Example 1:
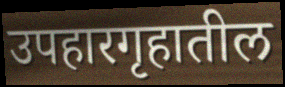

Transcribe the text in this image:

उपहारगृहातील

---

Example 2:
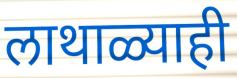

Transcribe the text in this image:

लाथाळ्याही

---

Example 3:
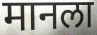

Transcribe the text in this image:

मानला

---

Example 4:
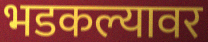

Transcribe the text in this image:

भडकल्यावर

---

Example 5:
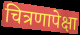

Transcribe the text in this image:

चित्रणापेक्षा